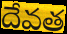
దేవత